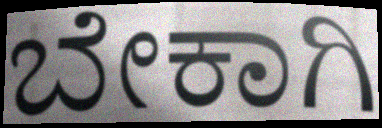
ಬೇಕಾಗಿ